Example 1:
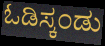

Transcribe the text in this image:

ಓಡಿಸ್ಕಂಡು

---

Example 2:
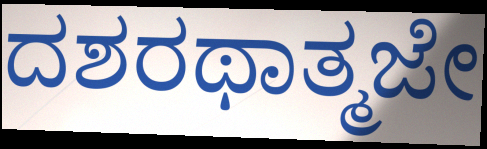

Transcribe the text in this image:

ದಶರಥಾತ್ಮಜೇ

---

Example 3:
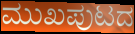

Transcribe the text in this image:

ಮುಖಪುಟದ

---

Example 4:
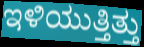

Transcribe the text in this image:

ಇಳಿಯುತ್ತಿತ್ತು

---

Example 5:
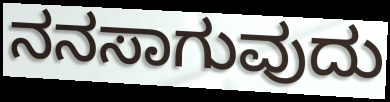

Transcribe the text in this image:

ನನಸಾಗುವುದು